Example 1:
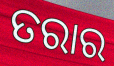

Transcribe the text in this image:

ତରାର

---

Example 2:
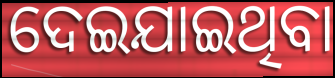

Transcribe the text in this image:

ଦେଇଯାଇଥିବା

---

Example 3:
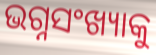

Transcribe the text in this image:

ଭଗ୍ନସଂଖ୍ୟାକୁ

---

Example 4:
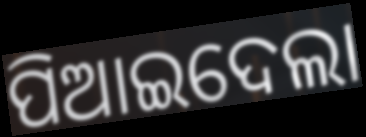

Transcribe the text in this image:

ପିଆଇଦେଲା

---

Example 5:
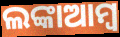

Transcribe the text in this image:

ଲଙ୍କାଆମ୍ବ